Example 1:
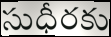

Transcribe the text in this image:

సుధీరకు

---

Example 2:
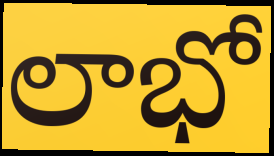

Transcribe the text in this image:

లాభో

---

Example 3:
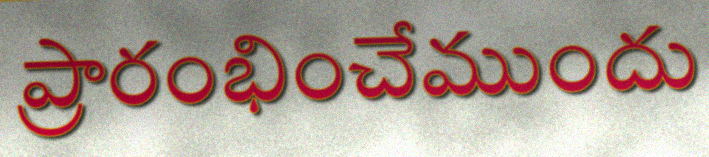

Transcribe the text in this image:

ప్రారంభించేముందు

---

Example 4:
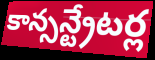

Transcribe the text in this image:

కాన్సన్ట్రేటర్ల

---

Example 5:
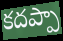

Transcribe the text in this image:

కదప్పా